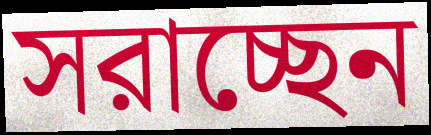
সরাচ্ছেন